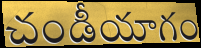
చండీయాగం